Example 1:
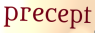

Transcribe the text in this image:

precept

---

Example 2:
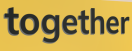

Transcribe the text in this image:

together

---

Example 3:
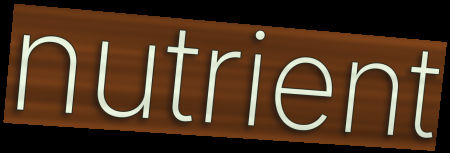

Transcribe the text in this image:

nutrient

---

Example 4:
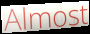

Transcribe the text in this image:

Almost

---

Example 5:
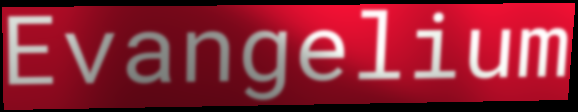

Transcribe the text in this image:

Evangelium